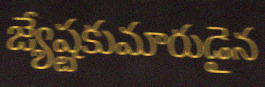
జ్యేష్టకుమారుడైన